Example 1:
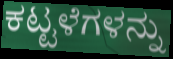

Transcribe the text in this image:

ಕಟ್ಟಳೆಗಳನ್ನು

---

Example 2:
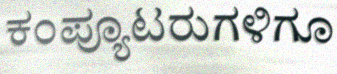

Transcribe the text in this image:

ಕಂಪ್ಯೂಟರುಗಳಿಗೂ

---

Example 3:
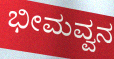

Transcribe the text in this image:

ಭೀಮವ್ವನ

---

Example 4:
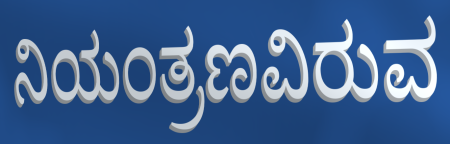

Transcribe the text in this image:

ನಿಯಂತ್ರಣವಿರುವ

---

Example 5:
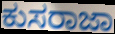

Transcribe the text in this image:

ಕುಸರಾಜಾ